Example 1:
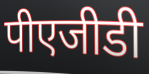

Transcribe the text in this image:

पीएजीडी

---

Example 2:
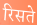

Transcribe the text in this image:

रिसते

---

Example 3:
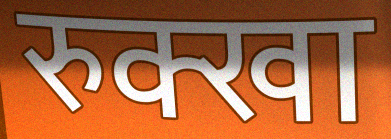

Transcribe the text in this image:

रुक्खा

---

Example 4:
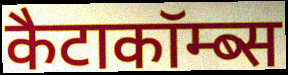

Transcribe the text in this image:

कैटाकॉम्ब्स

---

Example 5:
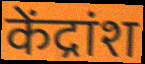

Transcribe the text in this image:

केंद्रांश